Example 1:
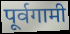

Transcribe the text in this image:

पूर्वगामी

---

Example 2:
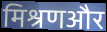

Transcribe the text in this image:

मिश्रणऔर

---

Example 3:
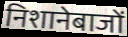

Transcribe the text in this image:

निशानेबाजों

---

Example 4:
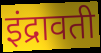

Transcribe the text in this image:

इंद्रावती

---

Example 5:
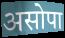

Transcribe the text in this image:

असोपा